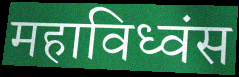
महाविध्वंस